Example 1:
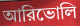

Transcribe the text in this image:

আরিভোলি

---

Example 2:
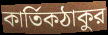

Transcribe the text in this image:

কার্তিকঠাকুর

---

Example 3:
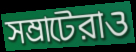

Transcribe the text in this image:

সম্রাটেরাও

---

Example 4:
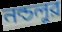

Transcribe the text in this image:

নন্ডলুর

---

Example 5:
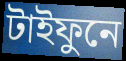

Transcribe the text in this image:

টাইফুনে